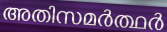
അതിസമർത്ഥർ